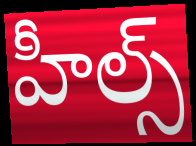
హీల్స్